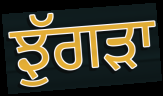
ਝੁੱਗੜਾ